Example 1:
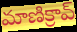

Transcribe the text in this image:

మాణిక్రావ్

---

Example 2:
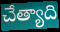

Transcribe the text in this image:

చేత్యాది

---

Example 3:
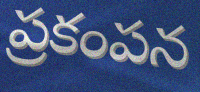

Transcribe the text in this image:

ప్రకంపన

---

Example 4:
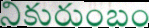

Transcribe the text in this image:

నికురుంబం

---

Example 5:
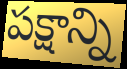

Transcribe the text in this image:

పక్షాన్ని